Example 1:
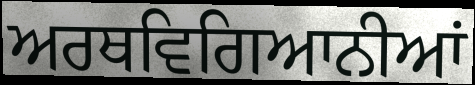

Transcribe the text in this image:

ਅਰਥਵਿਗਿਆਨੀਆਂ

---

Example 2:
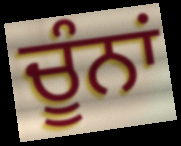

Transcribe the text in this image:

ਚੂੰਨਾਂ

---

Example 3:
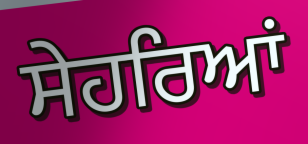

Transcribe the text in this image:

ਸੇਹਰਿਆਂ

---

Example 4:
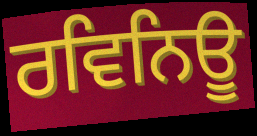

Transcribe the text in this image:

ਰਵਿਨਿਊ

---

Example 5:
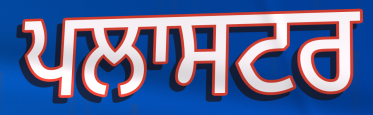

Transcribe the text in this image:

ਪਲਾਸਟਰ